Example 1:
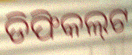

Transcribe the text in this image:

ଡିଫିକଲ୍‌ଟ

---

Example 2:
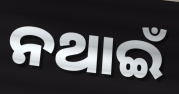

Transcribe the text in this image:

ନଥାଇଁ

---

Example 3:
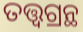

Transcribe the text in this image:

ତତ୍ତ୍ୱଗ୍ରନ୍ଥ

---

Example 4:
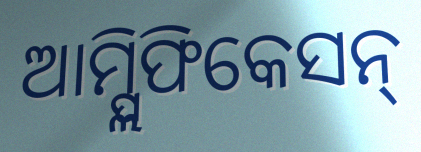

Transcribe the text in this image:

ଆମ୍ପ୍ଲିଫିକେସନ୍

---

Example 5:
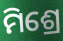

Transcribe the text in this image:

ମିଶ୍ରେ